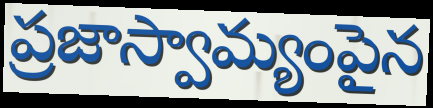
ప్రజాస్వామ్యంపైన